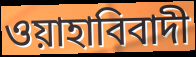
ওয়াহাবিবাদী